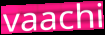
vaachi